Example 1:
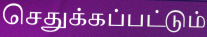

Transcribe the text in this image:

செதுக்கப்பட்டும்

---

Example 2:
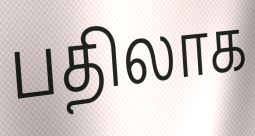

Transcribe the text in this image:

பதிலாக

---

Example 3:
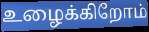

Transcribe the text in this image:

உழைக்கிறோம்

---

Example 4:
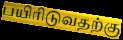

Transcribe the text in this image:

பயிரிடுவதற்கு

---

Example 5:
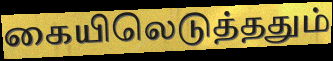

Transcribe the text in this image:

கையிலெடுத்ததும்